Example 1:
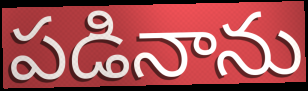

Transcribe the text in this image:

పడినాను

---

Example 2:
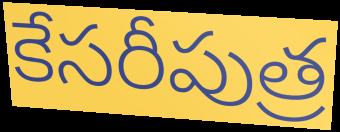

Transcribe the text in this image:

కేసరీపుత్ర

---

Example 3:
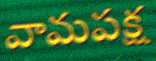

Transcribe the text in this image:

వామపక్ష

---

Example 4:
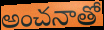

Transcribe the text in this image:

అంచనాతో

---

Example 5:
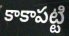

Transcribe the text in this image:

కాకాపట్టి